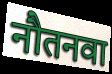
नौतनवा